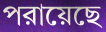
পরায়েছে